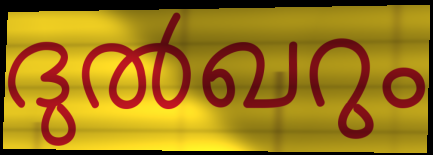
ദുൽഖറും